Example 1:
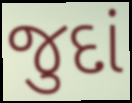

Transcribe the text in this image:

જુદાં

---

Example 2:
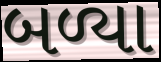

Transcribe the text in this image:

બળ્યા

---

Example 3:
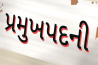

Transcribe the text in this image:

પ્રમુખપદની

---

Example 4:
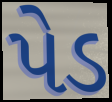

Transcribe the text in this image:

પેડ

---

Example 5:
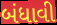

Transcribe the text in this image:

બંધાવી